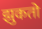
झुकतो